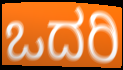
ಒದರಿ